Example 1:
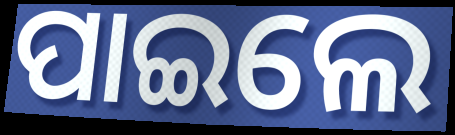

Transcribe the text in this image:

ପାଇଲେ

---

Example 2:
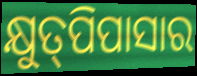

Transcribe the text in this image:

କ୍ଷୁତ୍‌ପିପାସାର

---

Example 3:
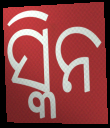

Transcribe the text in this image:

ସ୍କିନ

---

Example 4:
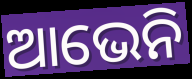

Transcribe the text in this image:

ଆଭେନି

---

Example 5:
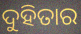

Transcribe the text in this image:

ଦୁହିତାର